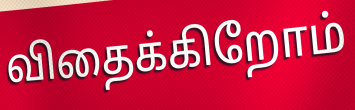
விதைக்கிறோம்